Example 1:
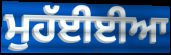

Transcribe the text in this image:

ਮੁਹੱਈਈਆ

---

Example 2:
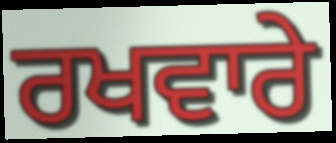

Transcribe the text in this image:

ਰਖਵਾਰੇ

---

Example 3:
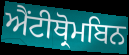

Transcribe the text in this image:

ਐਂਟੀਥ੍ਰੋਮਬਿਨ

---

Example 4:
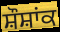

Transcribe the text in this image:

ਸ਼ੌਸ਼ਾਂਕ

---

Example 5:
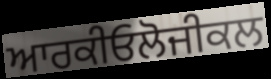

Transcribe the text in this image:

ਆਰਕੀਓਲੋਜੀਕਲ